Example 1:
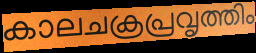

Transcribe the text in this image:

കാലചക്രപ്രവൃത്തിം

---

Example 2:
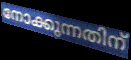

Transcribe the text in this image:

നോക്കുന്നതിന്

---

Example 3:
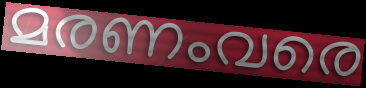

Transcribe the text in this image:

മരണംവരെ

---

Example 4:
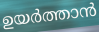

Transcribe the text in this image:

ഉയർത്താൻ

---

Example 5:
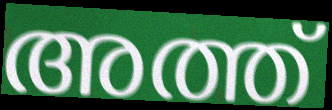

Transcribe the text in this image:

അത്ത്